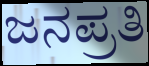
ಜನಪ್ರತಿ